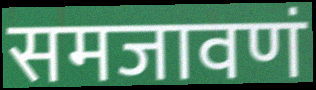
समजावणं